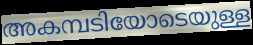
അകമ്പടിയോടെയുള്ള